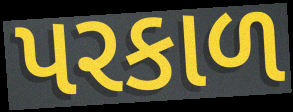
પરકાળ